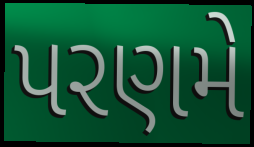
પરણમે